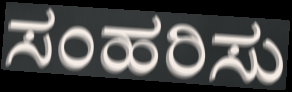
ಸಂಹರಿಸು